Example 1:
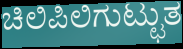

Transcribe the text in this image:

ಚಿಲಿಪಿಲಿಗುಟ್ಟುತ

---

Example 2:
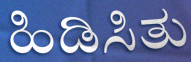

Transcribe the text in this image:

ಹಿಡಿಸಿತು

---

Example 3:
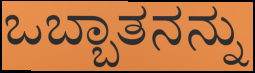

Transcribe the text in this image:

ಒಬ್ಬಾತನನ್ನು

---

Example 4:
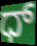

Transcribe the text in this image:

ಧ್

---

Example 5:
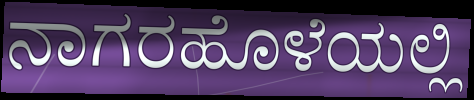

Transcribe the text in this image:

ನಾಗರಹೊಳೆಯಲ್ಲಿ